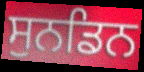
ਸੁਨਡਿਨ